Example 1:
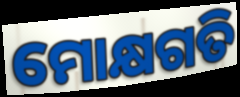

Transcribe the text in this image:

ମୋକ୍ଷଗତି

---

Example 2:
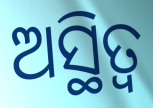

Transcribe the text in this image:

ଅସ୍ଥିତ୍ଵ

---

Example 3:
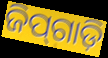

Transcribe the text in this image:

ଜିପ୍‍ଗାଡ଼ି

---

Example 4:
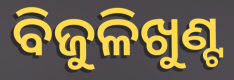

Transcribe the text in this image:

ବିଜୁଳିଖୁଣ୍ଟ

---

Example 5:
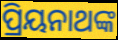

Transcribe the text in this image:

ପ୍ରିୟନାଥଙ୍କ